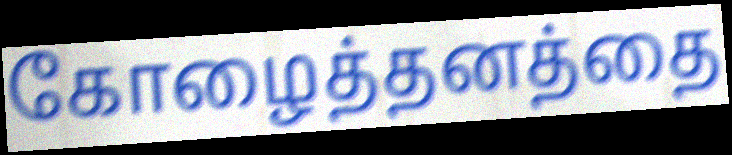
கோழைத்தனத்தை